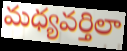
మధ్యవర్తిలా